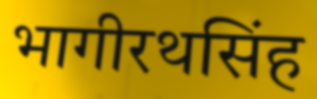
भागीरथसिंह